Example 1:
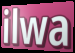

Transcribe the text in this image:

ilwa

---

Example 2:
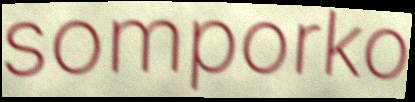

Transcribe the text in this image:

somporko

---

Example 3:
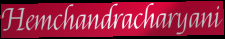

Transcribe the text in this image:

Hemchandracharyani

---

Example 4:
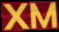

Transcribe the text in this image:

XM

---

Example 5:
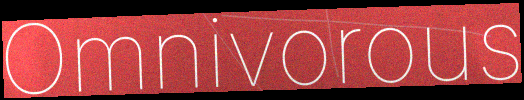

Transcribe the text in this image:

Omnivorous